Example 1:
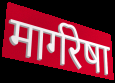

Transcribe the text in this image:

मार्गरेषा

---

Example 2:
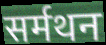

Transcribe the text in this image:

सर्मथन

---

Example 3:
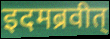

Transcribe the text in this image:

इदमब्रवीत्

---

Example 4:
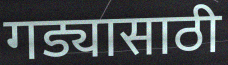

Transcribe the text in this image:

गड्यासाठी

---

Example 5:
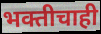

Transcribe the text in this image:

भक्तीचाही